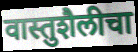
वास्तुशैलीचा